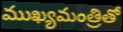
ముఖ్యమంత్రితో